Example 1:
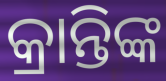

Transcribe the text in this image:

କ୍ରାନ୍ତିଙ୍କ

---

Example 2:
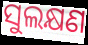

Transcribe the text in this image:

ସୁଲକ୍ଷଣ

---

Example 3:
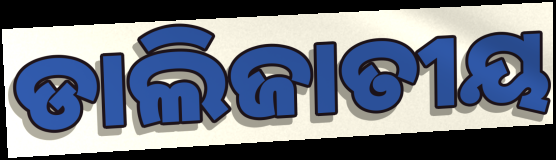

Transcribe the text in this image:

ଡାଲିଜାତୀୟ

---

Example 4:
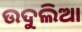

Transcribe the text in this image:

ଉଦୁଲିଆ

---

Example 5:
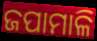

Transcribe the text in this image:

ଜପାମାଳି